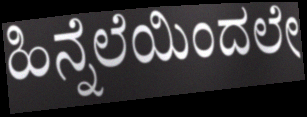
ಹಿನ್ನೆಲೆಯಿಂದಲೇ